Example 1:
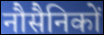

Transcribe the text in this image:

नौसैनिकों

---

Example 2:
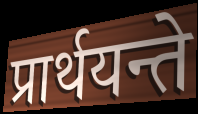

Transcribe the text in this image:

प्रार्थयन्ते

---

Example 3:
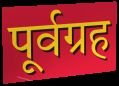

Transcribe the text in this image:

पूर्वग्रह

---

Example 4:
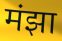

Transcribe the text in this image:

मंझा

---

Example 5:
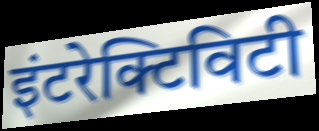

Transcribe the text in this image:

इंटरेक्टिविटी